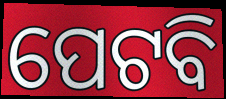
ପେଟବି